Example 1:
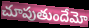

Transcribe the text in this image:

చూపుతుందేమో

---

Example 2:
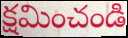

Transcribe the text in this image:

క్షమించండి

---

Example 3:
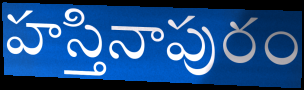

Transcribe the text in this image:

హస్తినాపురం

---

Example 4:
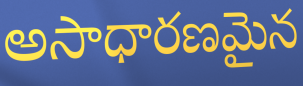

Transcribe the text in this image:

అసాధారణమైన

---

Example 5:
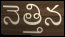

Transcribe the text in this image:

నెత్తిన